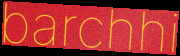
barchhi